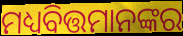
ମଧ୍ୟବିତ୍ତମାନଙ୍କର